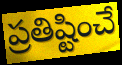
ప్రతిష్టించే